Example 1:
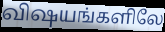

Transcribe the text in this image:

விஷயங்களிலே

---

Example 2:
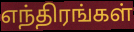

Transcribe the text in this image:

எந்திரங்கள்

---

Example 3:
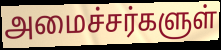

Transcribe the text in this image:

அமைச்சர்களுள்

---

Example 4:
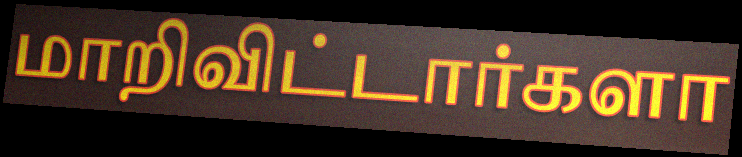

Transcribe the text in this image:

மாறிவிட்டார்களா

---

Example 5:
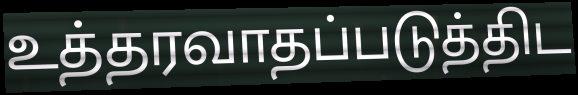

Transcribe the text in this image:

உத்தரவாதப்படுத்திட